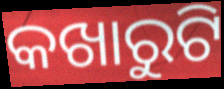
କଖାରୁଟି